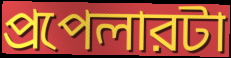
প্রপেলারটা